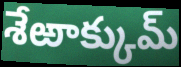
శేఱాక్కుమ్